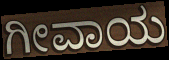
ಗೀವಾಯ